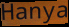
Hanya